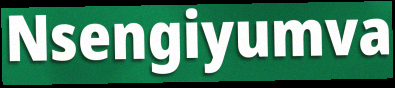
Nsengiyumva